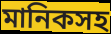
মানিকসহ